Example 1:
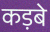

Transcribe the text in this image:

कड़बे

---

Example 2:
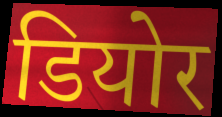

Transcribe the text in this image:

डियोर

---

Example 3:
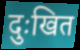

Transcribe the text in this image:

दुःखित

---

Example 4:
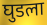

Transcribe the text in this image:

घुडला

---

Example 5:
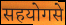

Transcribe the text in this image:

सहयोगसे